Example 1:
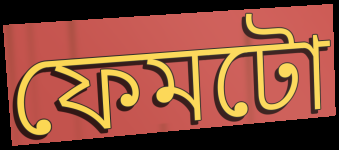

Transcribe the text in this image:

ফেমটো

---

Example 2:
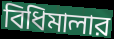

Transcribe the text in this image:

বিধিমালার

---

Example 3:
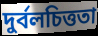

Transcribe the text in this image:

দুর্বলচিত্ততা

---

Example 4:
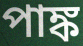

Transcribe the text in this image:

পাঙ্ক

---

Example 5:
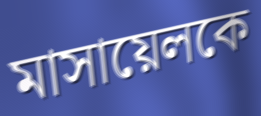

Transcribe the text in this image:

মাসায়েলকে